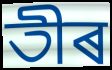
তীৰ